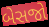
બેસજો